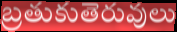
బ్రతుకుతెరువులు